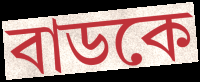
বাডকে